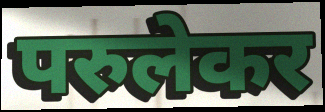
परुलेकर